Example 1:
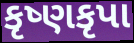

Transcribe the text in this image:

કૃષ્ણકૃપા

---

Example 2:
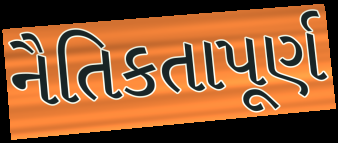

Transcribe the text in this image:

નૈતિકતાપૂર્ણ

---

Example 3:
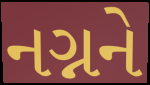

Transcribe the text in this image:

નગ્નને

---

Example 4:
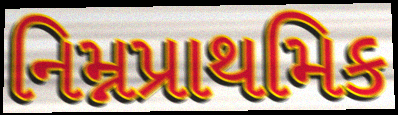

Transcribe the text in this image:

નિમ્નપ્રાથમિક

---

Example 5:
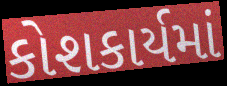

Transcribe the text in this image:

કોશકાર્યમાં